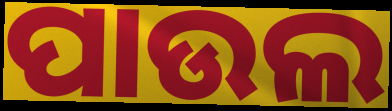
ପାଉଲ